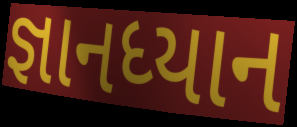
જ્ઞાનધ્યાન